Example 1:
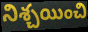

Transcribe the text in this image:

నిశ్చయించి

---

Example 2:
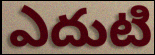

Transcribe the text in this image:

ఎదుటి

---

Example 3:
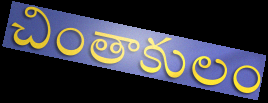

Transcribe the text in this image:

చింతాకులం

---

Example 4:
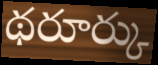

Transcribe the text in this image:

థరూర్కు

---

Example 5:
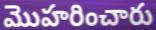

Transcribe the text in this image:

మొహరించారు